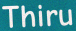
Thiru